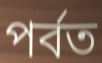
পর্বত